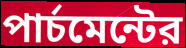
পার্চমেন্টের